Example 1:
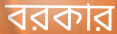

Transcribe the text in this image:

বরকার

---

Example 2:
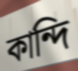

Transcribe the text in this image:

কান্দি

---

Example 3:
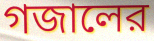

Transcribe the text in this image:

গজালের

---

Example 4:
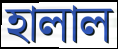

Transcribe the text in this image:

হালাল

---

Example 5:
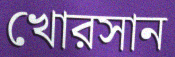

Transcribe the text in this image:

খোরসান